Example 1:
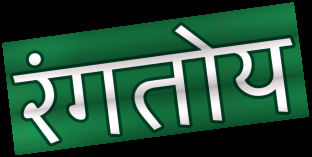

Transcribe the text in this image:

रंगतोय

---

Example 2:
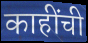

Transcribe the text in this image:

काहींची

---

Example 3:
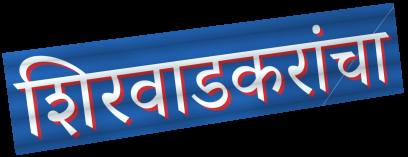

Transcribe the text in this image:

शिरवाडकरांचा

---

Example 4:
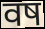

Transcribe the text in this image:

वष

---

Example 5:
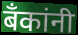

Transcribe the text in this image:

बॅंकांनी